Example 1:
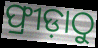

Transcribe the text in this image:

ଫ୍ରୀଡ଼ାଠୁ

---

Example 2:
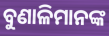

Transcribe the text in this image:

ବୁଣାଳିମାନଙ୍କ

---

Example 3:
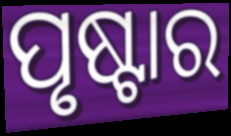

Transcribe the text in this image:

ପୃଷ୍ଟାର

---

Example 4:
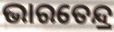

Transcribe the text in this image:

ଭାରତେନ୍ଦ୍ର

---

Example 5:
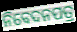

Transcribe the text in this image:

ନିବେଦନପତ୍ର